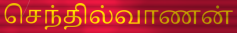
செந்தில்வாணன்